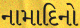
નામાદિનો